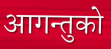
आगन्तुको